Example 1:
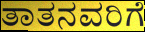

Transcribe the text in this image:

ತಾತನವರಿಗೆ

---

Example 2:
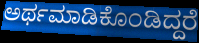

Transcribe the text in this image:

ಅರ್ಥಮಾಡಿಕೊಂಡಿದ್ದರೆ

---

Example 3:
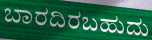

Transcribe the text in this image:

ಬಾರದಿರಬಹುದು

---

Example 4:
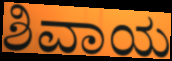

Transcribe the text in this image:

ಶಿವಾಯ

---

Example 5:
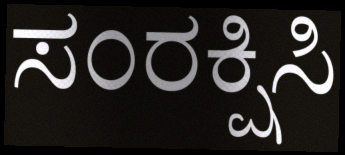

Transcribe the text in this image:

ಸಂರಕ್ಷಿಸಿ